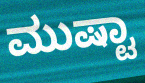
ಮುಷ್ಟಾ